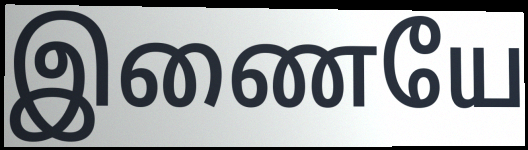
இணையே